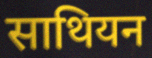
साथियन